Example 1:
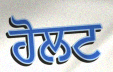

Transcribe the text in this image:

ਹੋਲਟ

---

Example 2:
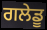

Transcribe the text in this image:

ਗਲੇਡੂ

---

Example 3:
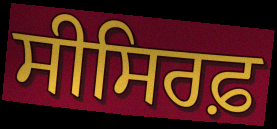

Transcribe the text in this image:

ਸੀਸਿਰਫ਼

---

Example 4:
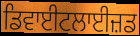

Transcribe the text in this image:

ਡਿਵਾਈਟਲਾਈਜ਼ਡ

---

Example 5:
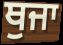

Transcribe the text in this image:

ਥੁਜਾ